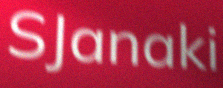
SJanaki